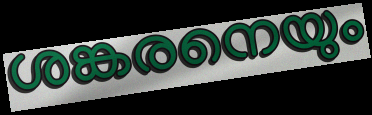
ശങ്കരനെയും